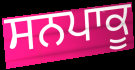
ਸਨਪਾਕੂ